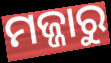
ମଜ୍ଜାରୁ